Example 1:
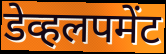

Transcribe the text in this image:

डेव्हलपमेंट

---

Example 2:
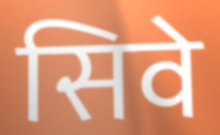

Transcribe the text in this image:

सिवे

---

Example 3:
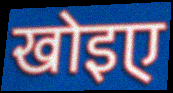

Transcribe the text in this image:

खोइए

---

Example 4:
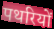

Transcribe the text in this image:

पथरियों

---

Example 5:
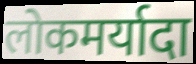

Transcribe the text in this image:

लोकमर्यादा